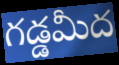
గడ్డమీద